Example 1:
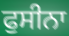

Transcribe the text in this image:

ਫੁਸੀਨਾ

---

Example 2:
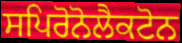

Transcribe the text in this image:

ਸਪਿਰੋਨੋਲੈਕਟੋਨ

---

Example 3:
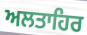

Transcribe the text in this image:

ਅਲਤਾਹਿਰ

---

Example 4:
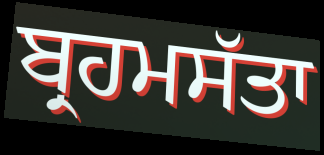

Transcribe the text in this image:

ਬ੍ਰਹਮਸੱਤਾ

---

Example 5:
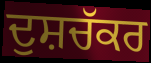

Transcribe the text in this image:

ਦੁਸ਼ਚੱਕਰ